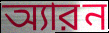
অ্যারন